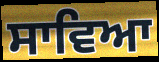
ਸਾਵਿਆ